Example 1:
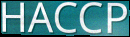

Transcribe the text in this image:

HACCP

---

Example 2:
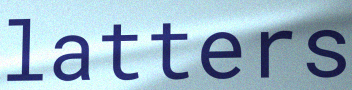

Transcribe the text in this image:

latters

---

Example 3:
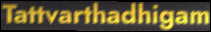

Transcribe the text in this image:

Tattvarthadhigam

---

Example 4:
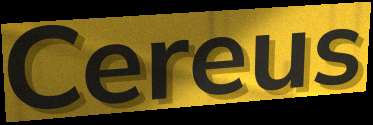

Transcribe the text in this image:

Cereus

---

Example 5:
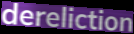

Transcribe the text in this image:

dereliction